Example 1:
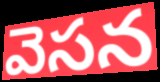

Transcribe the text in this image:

వెసన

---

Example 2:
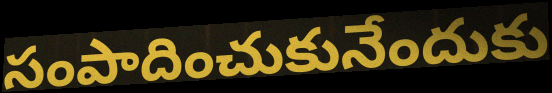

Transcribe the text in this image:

సంపాదించుకునేందుకు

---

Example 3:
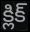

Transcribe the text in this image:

క్లిక్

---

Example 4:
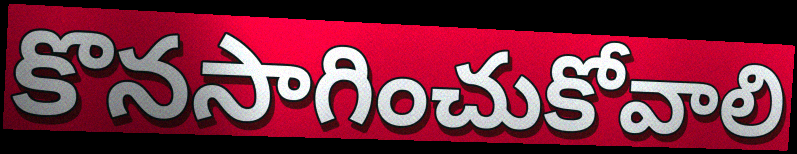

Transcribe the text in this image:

కొనసాగించుకోవాలి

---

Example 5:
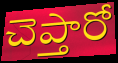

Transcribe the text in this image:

చెప్తారో